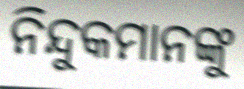
ନିନ୍ଦୁକମାନଙ୍କୁ